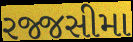
રજ્જસીમા